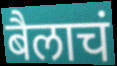
बैलाचं